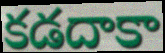
కడదాకా